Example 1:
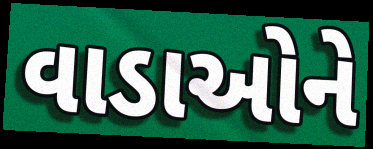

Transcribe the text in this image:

વાડાઓને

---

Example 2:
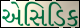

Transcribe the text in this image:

એસિડિક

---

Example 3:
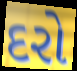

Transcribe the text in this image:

દરો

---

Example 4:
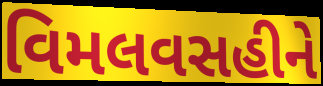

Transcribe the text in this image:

વિમલવસહીને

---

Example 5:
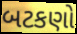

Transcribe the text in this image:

બટકણો